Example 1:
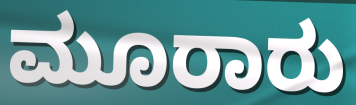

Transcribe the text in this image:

ಮೂರಾರು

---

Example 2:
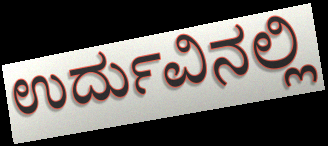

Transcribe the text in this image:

ಉರ್ದುವಿನಲ್ಲಿ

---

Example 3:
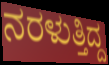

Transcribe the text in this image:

ನರಳುತ್ತಿದ್ದ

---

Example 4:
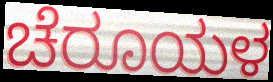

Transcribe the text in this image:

ಚೆರೂಯಳ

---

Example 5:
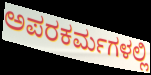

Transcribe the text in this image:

ಅಪರಕರ್ಮಗಳಲ್ಲಿ